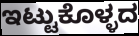
ಇಟ್ಟುಕೊಳ್ಳದ